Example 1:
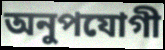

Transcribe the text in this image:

অনুপযোগী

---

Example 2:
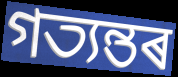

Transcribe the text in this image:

গত্যন্তৰ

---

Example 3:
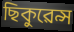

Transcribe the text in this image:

ছিকুৱেন্স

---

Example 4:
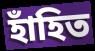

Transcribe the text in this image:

হাঁহিত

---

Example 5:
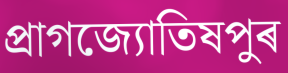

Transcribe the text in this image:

প্ৰাগজ্যোতিষপুৰ